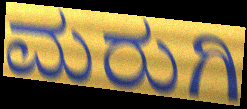
ಮರುಗಿ